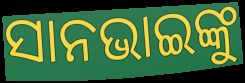
ସାନଭାଇଙ୍କୁ